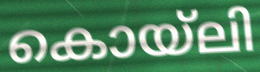
കൊയ്ലി